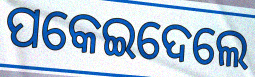
ପକେଇଦେଲେ